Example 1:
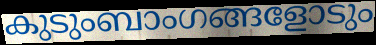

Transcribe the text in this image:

കുടുംബാംഗങ്ങളോടും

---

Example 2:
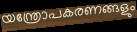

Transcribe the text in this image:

യന്ത്രോപകരണങ്ങളും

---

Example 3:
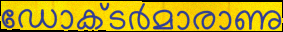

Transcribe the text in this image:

ഡോക്ടർമാരാണു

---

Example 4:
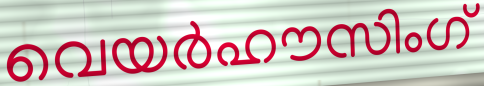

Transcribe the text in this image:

വെയർഹൗസിംഗ്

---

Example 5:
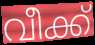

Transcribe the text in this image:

വീക്ക്